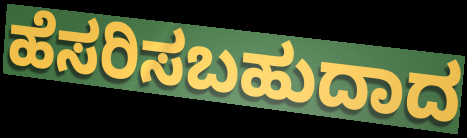
ಹೆಸರಿಸಬಹುದಾದ